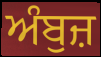
ਅੰਬੁਜ਼